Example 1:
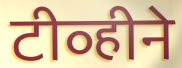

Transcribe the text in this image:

टीव्हीने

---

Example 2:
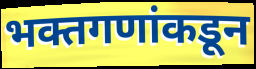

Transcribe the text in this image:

भक्तगणांकडून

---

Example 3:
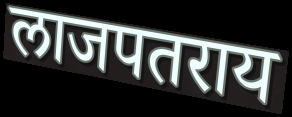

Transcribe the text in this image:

लाजपतराय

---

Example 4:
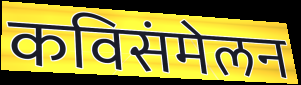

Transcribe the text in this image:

कविसंमेलन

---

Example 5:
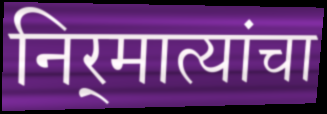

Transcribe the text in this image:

निर्मात्यांचा